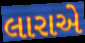
લારાએ